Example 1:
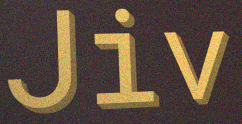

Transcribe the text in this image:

Jiv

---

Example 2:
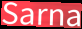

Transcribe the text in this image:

Sarna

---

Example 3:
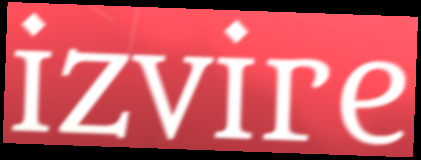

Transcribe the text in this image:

izvire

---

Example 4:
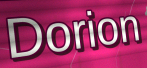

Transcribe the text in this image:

Dorion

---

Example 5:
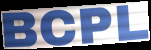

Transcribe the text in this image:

BCPL